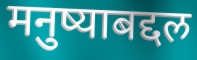
मनुष्याबद्दल